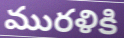
మురళికి